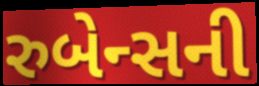
રુબેન્સની